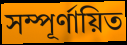
সম্পূর্ণায়িত